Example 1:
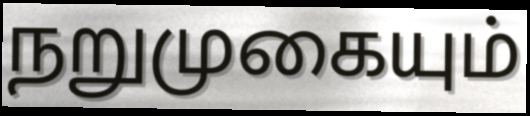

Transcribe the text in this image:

நறுமுகையும்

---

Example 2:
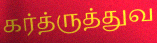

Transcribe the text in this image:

கர்த்ருத்துவ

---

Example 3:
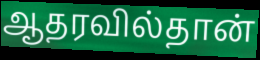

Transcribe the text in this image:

ஆதரவில்தான்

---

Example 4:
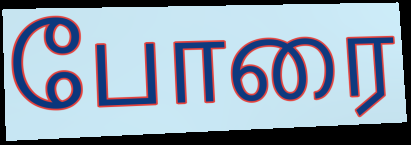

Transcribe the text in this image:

போரை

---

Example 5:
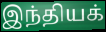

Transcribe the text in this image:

இந்தியக்